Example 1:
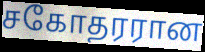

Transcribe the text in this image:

சகோதரரான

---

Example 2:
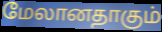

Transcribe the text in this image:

மேலானதாகும்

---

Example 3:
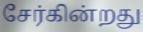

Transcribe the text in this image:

சேர்கின்றது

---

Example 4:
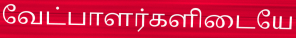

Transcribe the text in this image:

வேட்பாளர்களிடையே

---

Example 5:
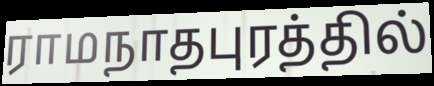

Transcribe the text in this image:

ராமநாதபுரத்தில்